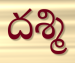
దశ్మి